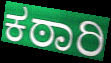
ಕಠಾರಿ